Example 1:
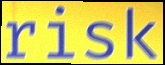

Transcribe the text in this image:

risk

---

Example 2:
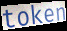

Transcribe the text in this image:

token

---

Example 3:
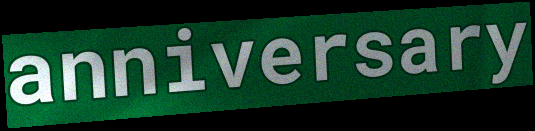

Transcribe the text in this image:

anniversary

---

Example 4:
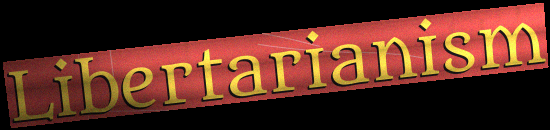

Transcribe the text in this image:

Libertarianism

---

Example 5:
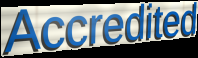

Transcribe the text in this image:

Accredited